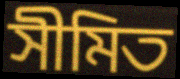
সীমিত